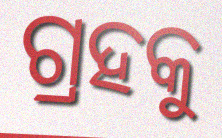
ଗ୍ରହକୁ